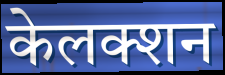
केलक्शन